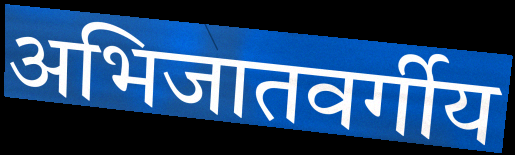
अभिजातवर्गीय